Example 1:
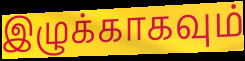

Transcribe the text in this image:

இழுக்காகவும்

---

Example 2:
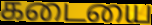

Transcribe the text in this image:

கடையை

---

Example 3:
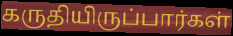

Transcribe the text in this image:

கருதியிருப்பார்கள்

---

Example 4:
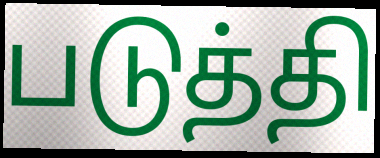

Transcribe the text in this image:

படுத்தி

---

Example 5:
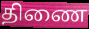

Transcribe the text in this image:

திணை